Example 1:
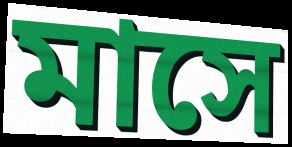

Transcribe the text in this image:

মাসে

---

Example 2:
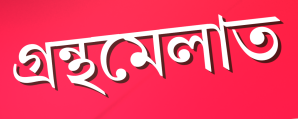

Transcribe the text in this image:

গ্ৰন্থমেলাত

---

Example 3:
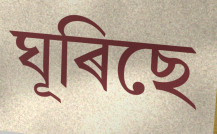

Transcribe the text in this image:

ঘূৰিছে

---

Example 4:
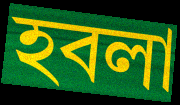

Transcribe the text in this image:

হবলা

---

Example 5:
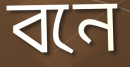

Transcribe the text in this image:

বনে